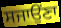
ਸਜਾਉਂਣਾ